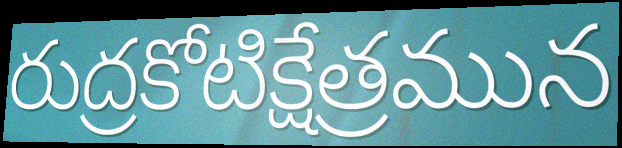
రుద్రకోటిక్షేత్రమున